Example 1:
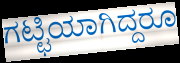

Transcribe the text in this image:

ಗಟ್ಟಿಯಾಗಿದ್ದರೂ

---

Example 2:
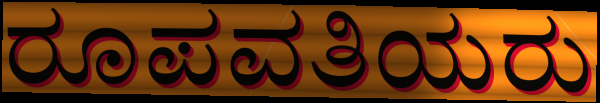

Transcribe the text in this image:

ರೂಪವತಿಯರು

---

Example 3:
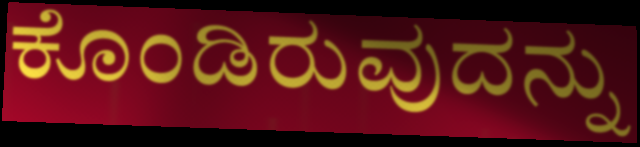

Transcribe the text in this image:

ಕೊಂಡಿರುವುದನ್ನು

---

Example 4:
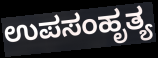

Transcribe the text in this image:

ಉಪಸಂಹೃತ್ಯ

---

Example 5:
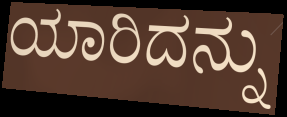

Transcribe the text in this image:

ಯಾರಿದನ್ನು